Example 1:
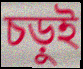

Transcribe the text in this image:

চড়ুই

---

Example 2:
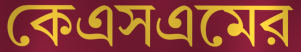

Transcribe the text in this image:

কেএসএমের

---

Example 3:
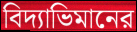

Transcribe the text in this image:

বিদ্যাভিমানের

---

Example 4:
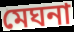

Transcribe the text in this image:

মেঘনা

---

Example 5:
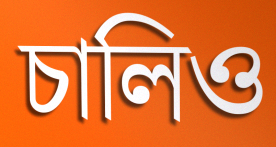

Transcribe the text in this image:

চালিও